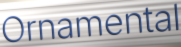
Ornamental